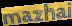
mazhai